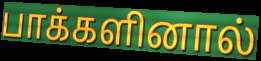
பாக்களினால்